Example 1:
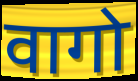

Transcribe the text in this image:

वागो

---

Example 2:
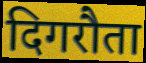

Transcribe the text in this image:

दिगरौता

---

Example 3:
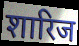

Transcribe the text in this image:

शारिज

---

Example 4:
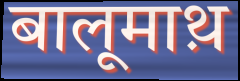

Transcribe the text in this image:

बालूमाथ़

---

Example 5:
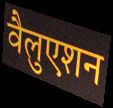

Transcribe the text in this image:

वैलुएशन